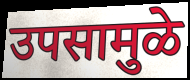
उपसामुळे